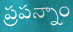
ప్రపన్నాం